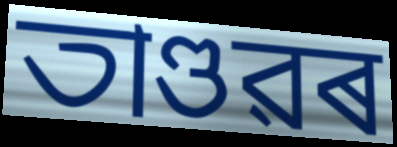
তাণ্ডৱৰ